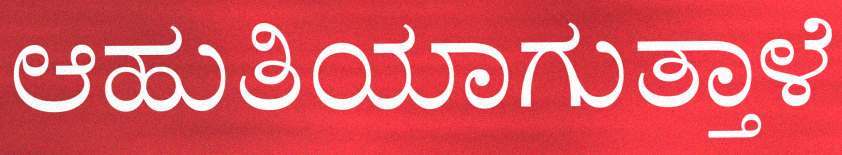
ಆಹುತಿಯಾಗುತ್ತಾಳೆ